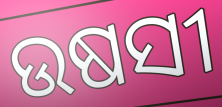
ଉଷସୀ